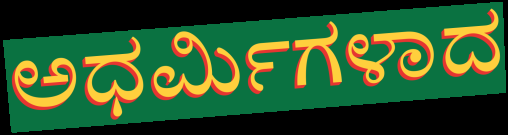
ಅಧರ್ಮಿಗಳಾದ